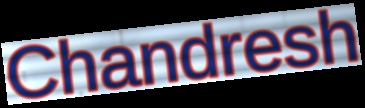
Chandresh